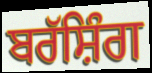
ਬਰੱਸ਼ਿੰਗ